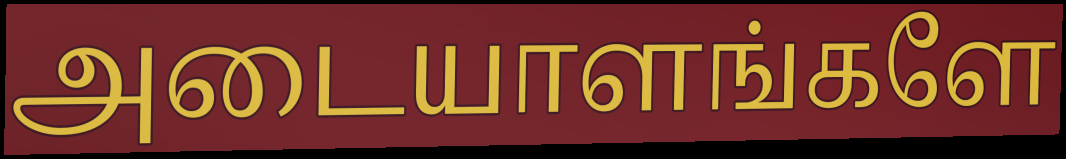
அடையாளங்களே